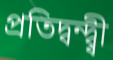
প্ৰতিদ্বন্দ্ব্বী